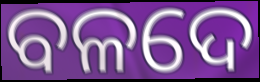
ବଳଦେ